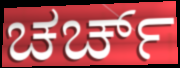
ಚರ್ಚ್